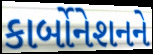
કાર્બોનેશનને